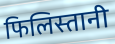
फिलिस्तानी